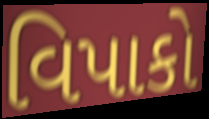
વિપાકો